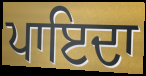
ਪਾਇਦਾ